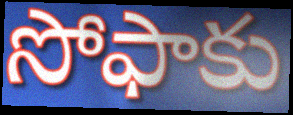
సోఫాకు